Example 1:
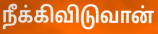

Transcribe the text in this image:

நீக்கிவிடுவான்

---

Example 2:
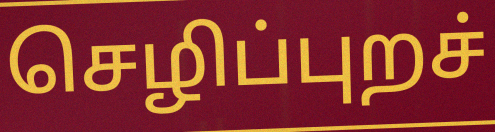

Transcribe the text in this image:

செழிப்புறச்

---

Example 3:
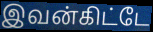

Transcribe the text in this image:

இவன்கிட்டே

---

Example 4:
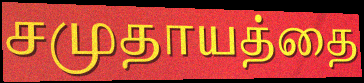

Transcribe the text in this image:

சமுதாயத்தை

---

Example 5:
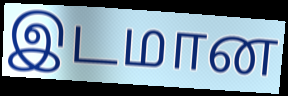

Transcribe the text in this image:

இடமான